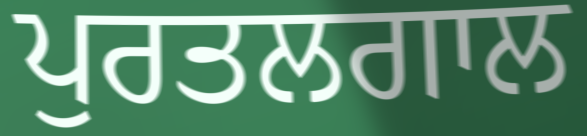
ਪੁਰਤਲਗਾਲ